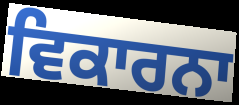
ਵਿਕਾਰਨਾ